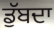
ਡੁੱਬਦਾ